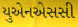
યુએનએસસી